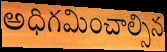
అధిగమించాల్సిన